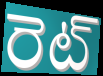
రెట్